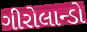
ગીરોલાન્ડો